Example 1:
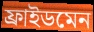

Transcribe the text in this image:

ফ্ৰাইডমেন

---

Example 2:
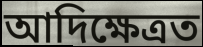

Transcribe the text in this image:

আদিক্ষেত্ৰত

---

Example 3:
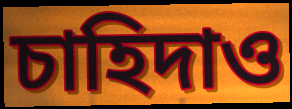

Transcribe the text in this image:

চাহিদাও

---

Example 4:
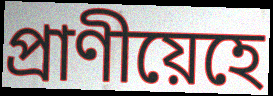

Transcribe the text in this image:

প্ৰাণীয়েহে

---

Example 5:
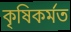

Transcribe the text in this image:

কৃষিকৰ্মত